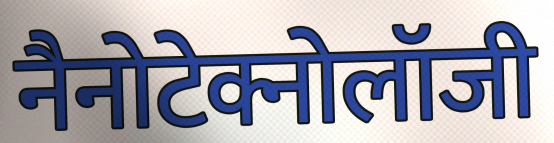
नैनोटेक्नोलॉजी